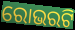
ରୋଭରଟି